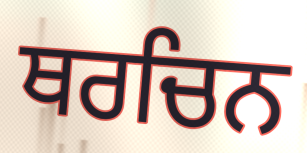
ਥਰਚਿਨ